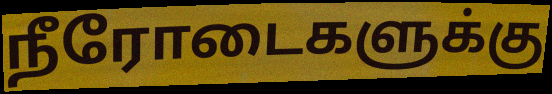
நீரோடைகளுக்கு